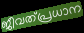
ജീവത്പ്രധാന